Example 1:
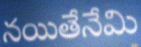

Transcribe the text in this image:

నయితేనేమి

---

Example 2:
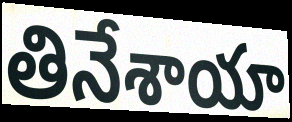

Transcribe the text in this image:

తినేశాయా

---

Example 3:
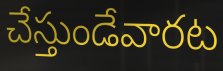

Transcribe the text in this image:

చేస్తుండేవారట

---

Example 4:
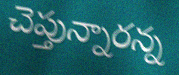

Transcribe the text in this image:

చెప్తున్నారన్న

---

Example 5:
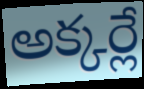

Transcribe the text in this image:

అక్కర్లే